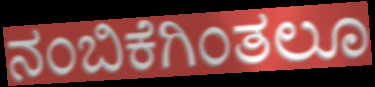
ನಂಬಿಕೆಗಿಂತಲೂ